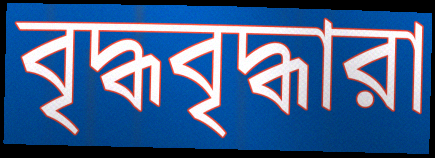
বৃদ্ধবৃদ্ধারা